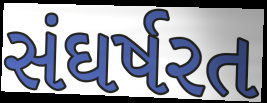
સંઘર્ષરત